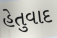
હેતુવાદ